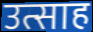
उत्साह